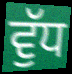
ਵੁੱਧ